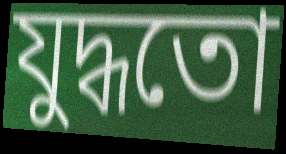
যুদ্ধতো